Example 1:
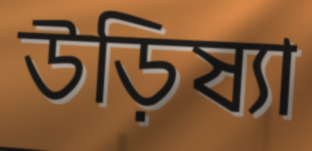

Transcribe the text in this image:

উড়িষ্যা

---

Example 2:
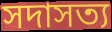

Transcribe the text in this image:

সদাসত্য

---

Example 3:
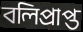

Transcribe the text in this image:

বলিপ্রাপ্ত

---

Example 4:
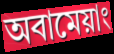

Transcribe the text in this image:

অবামেয়াং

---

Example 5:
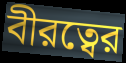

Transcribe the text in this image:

বীরত্বের